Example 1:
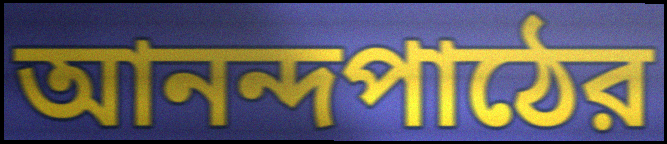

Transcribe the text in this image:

আনন্দপাঠের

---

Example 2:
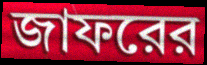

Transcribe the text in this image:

জাফরের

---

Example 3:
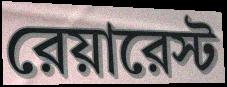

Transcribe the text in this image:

রেয়ারেস্ট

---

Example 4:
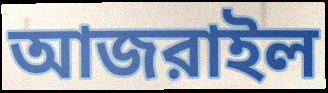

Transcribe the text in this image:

আজরাইল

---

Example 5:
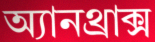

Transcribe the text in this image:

অ্যানথ্রাক্স